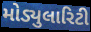
મોડ્યુલારિટી